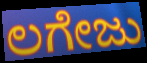
ಲಗೇಜು